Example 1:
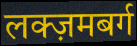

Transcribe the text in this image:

लक्ज़मबर्ग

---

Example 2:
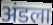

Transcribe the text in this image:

अंडला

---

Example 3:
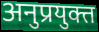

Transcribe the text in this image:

अनुप्रयुक्त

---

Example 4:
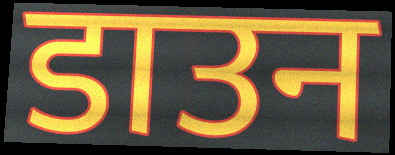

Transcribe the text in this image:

डाउन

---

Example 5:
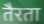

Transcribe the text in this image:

तैरता